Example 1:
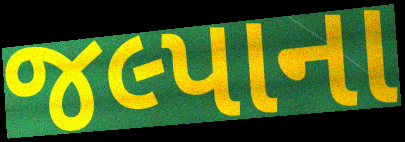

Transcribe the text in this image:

જલ્પાના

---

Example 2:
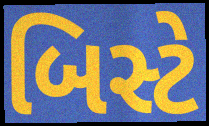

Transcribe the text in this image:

બિસ્ટે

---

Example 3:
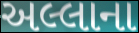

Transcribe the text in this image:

અલ્લાના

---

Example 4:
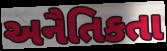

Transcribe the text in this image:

અનૈતિકતા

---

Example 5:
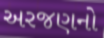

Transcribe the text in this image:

અરજણનો